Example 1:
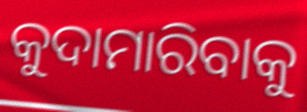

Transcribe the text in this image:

କୁଦାମାରିବାକୁ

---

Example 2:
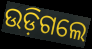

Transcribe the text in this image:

ଉଡ଼ିଗଲେ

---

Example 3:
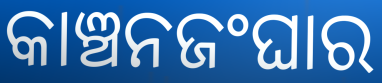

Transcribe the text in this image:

କାଞ୍ଚନଜଂଘାର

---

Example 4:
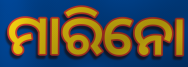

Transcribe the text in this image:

ମାରିନୋ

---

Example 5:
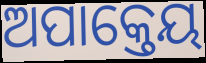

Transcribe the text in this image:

ଅପାକ୍ତେୟ